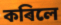
কৰিলে